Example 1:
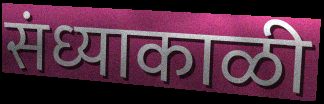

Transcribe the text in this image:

संध्‍याकाळी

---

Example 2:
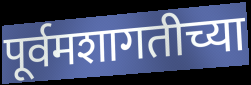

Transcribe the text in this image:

पूर्वमशागतीच्या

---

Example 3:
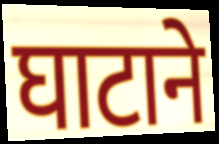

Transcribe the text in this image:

घाटाने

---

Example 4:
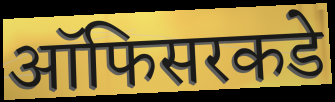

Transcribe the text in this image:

ऑफिसरकडे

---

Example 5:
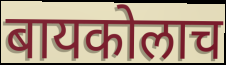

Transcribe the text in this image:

बायकोलाच